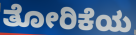
ತೋರಿಕೆಯ